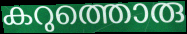
കറുത്തൊരു